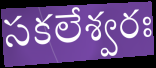
సకలేశ్వరః